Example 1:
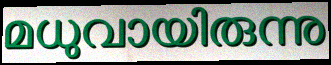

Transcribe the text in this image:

മധുവായിരുന്നു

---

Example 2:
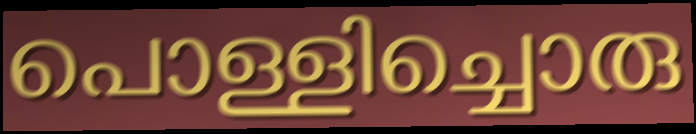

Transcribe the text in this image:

പൊള്ളിച്ചൊരു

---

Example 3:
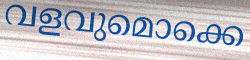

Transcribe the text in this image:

വളവുമൊക്കെ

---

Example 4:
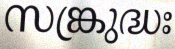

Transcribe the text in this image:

സങ്ക്രുദ്ധഃ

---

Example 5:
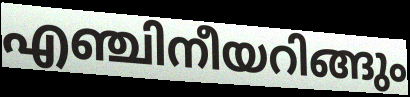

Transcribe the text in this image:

എഞ്ചിനീയറിങ്ങും